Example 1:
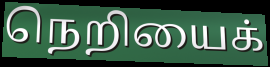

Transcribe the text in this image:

நெறியைக்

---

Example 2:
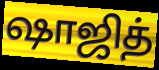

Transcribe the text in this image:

ஷாஜித்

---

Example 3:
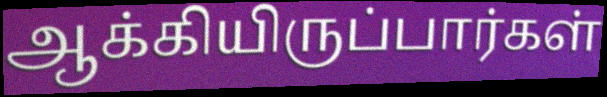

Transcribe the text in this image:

ஆக்கியிருப்பார்கள்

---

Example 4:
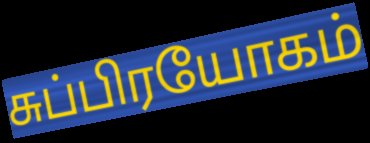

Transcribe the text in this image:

சுப்பிரயோகம்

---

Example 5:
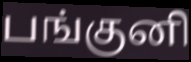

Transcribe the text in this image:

பங்குனி